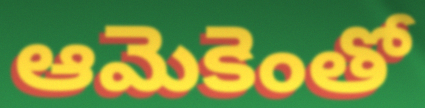
ఆమెకెంతో